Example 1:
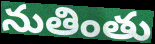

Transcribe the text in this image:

నుతింతు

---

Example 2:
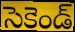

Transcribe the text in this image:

సెకెండ్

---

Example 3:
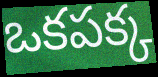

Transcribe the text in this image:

ఒకపక్క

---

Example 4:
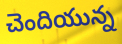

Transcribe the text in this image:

చెందియున్న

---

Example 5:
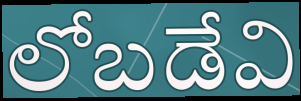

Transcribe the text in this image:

లోబడేవి